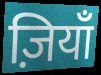
ज़ियाँ